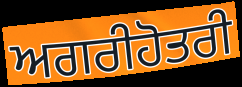
ਅਗਰੀਹੋਤਰੀ